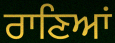
ਰਾਣਿਆਂ